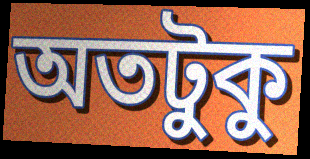
অতটুকু